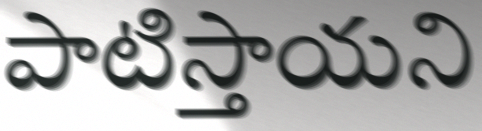
పాటిస్తాయని